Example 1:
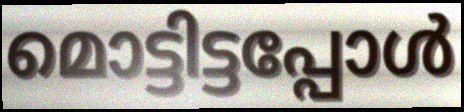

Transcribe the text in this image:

മൊട്ടിട്ടപ്പോൾ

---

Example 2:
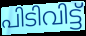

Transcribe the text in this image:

പിടിവിട്ട്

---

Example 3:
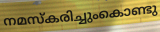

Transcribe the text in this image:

നമസ്കരിച്ചുംകൊണ്ടു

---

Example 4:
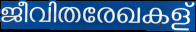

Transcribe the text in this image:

ജീവിതരേഖകള്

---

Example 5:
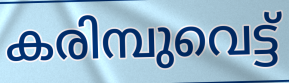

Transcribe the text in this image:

കരിമ്പുവെട്ട്